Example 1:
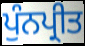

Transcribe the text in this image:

ਪੁੰਨਪ੍ਰੀਤ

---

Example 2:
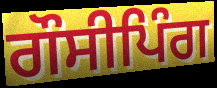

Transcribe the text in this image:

ਗੌਸੀਪਿੰਗ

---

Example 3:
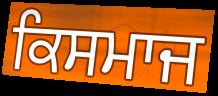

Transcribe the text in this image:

ਕਿਸਮਾਜ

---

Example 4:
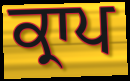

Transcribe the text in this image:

ਕ੍ਰਾਪ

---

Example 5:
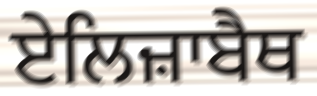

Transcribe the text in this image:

ਏਲਿਜ਼ਾਬੈਥ